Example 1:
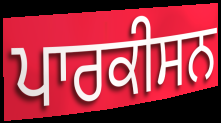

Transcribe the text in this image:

ਪਾਰਕੀਸਨ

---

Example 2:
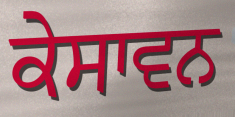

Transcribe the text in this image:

ਕੇਸਾਵਨ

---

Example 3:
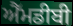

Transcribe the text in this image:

ਐੱਮਡੀਬੀ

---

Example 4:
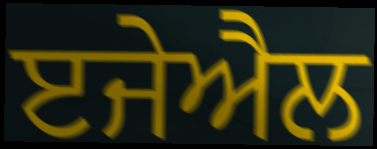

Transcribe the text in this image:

ੲਜੇਐਲ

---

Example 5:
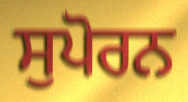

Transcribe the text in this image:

ਸੁਪੋਰਨ